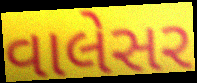
વાલેસર